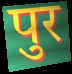
पुर